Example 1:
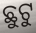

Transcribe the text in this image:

ଛୁଟୁ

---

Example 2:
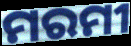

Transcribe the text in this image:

ମରମୀ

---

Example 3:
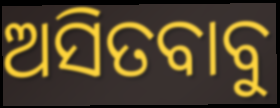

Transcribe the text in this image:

ଅସିତବାବୁ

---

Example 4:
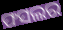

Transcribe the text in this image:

ଫସଲର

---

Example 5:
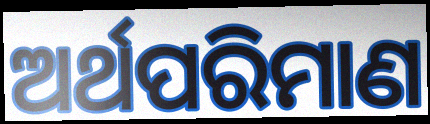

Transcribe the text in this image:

ଅର୍ଥପରିମାଣ